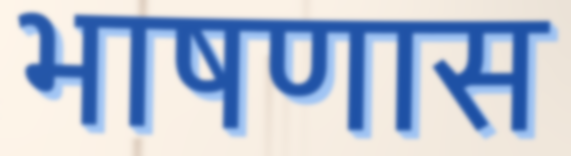
भाषणास